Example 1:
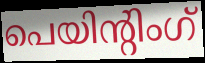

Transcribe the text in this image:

പെയിന്റിംഗ്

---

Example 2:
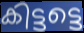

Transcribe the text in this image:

കിട്ടട്ടെ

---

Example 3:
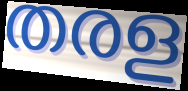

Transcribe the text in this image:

തരള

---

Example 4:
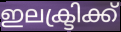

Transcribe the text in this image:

ഇലക്ട്രിക്ക്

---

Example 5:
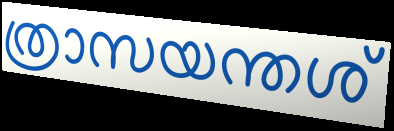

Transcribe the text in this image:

ത്രാസയന്തശ്